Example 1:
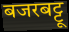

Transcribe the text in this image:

बजरबट्टू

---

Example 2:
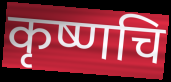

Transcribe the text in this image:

कृष्णचि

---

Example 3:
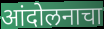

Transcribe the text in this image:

आंदोलनाचा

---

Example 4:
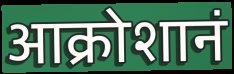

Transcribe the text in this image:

आक्रोशानं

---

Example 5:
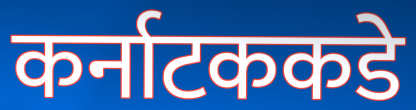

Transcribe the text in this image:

कर्नाटककडे